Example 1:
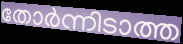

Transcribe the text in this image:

തോർന്നിടാത്ത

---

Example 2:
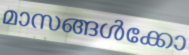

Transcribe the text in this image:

മാസങ്ങൾക്കോ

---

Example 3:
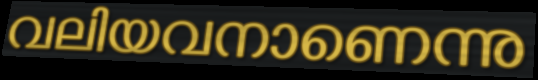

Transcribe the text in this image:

വലിയവനാണെന്നു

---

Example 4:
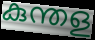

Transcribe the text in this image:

കുന്തള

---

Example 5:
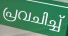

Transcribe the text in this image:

പ്രവചിച്ച്